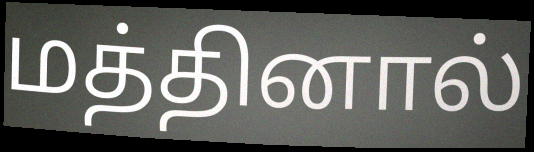
மத்தினால்